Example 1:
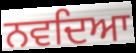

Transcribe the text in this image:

ਨਵਦਿਆ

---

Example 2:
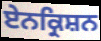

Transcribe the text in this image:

ਏਨਕ੍ਰਿਸ਼ਨ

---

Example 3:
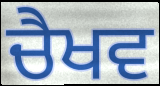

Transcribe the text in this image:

ਚੈਖਵ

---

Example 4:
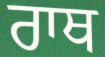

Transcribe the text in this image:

ਰਾਥ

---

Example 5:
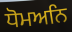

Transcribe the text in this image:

ਧੋਮਅਨਿ